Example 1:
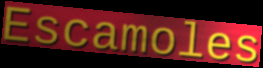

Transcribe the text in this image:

Escamoles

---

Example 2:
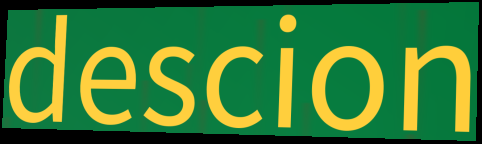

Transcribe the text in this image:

descion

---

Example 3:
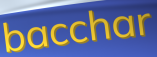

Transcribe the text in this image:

bacchar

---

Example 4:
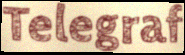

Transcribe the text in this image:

Telegraf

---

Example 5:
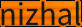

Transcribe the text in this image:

nizhal